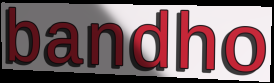
bandho